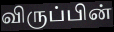
விருப்பின்